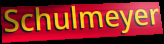
Schulmeyer